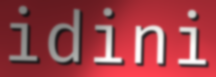
idini